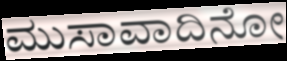
ಮುಸಾವಾದಿನೋ